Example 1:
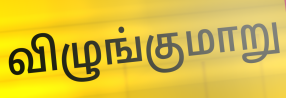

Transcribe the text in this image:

விழுங்குமாறு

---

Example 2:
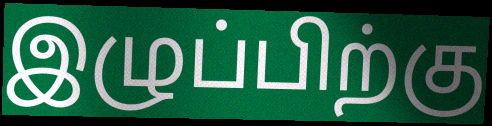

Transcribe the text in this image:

இழுப்பிற்கு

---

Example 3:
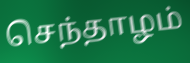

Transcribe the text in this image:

செந்தாழம்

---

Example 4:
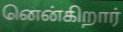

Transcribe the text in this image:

னென்கிறார்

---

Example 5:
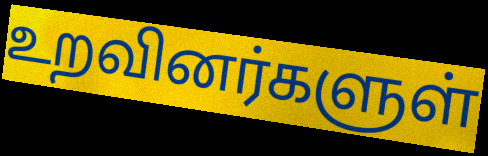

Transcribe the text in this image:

உறவினர்களுள்